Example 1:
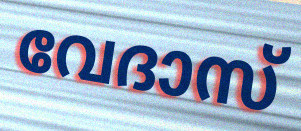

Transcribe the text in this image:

വേദാസ്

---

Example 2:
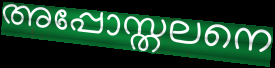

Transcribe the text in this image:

അപ്പോസ്തലനെ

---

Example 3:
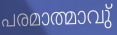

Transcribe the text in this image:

പരമാത്മാവു്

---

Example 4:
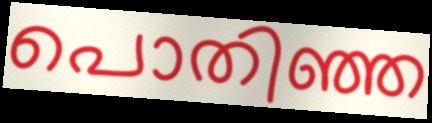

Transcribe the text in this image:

പൊതിഞ്ഞ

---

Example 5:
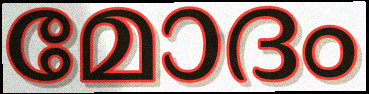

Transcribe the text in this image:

മോദം